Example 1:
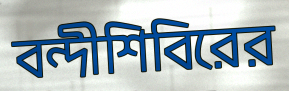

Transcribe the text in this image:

বন্দীশিবিরের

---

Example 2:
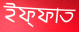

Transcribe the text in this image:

ইফ্ফাত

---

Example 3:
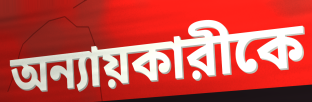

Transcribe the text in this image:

অন্যায়কারীকে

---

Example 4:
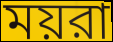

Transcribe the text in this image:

ময়রা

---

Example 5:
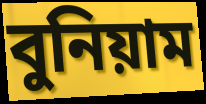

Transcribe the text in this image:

বুনিয়াম